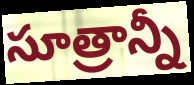
సూత్రాన్నీ